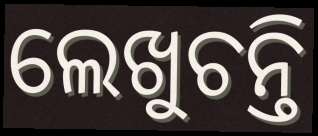
ଲେଖୁଚନ୍ତି